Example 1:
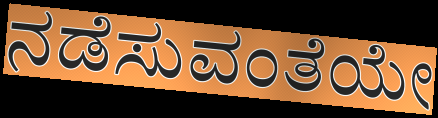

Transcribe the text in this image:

ನಡೆಸುವಂತೆಯೇ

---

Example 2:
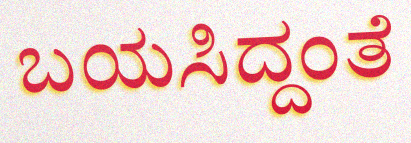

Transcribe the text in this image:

ಬಯಸಿದ್ದಂತೆ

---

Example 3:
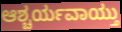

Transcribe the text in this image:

ಆಶ್ಚರ್ಯವಾಯ್ತು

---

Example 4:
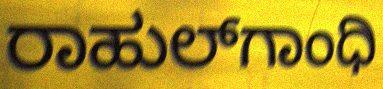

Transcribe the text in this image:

ರಾಹುಲ್‌ಗಾಂಧಿ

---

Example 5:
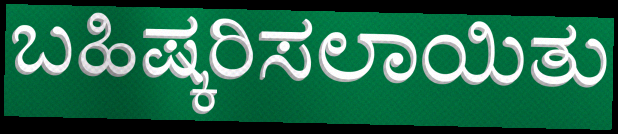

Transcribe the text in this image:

ಬಹಿಷ್ಕರಿಸಲಾಯಿತು